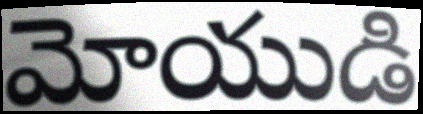
మోయుడి